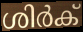
ശിർക്